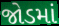
જોડમાં